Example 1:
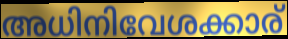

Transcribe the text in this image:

അധിനിവേശക്കാര്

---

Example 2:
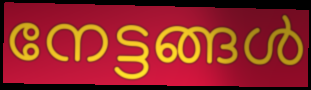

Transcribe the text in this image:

നേട്ടങ്ങൾ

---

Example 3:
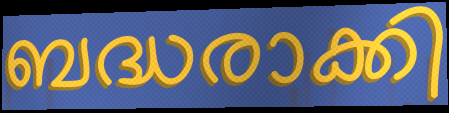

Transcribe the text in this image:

ബദ്ധരാക്കി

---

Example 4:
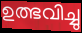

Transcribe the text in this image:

ഉത്ഭവിച്ചു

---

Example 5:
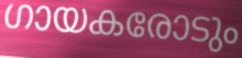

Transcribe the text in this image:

ഗായകരോടും